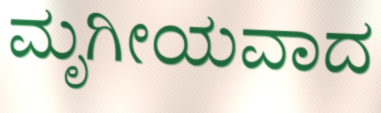
ಮೃಗೀಯವಾದ